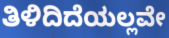
ತಿಳಿದಿದೆಯಲ್ಲವೇ